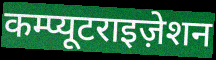
कम्प्यूटराइज़ेशन